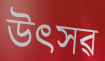
উৎসৱ